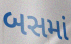
બસમાં